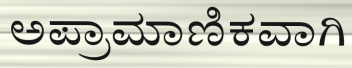
ಅಪ್ರಾಮಾಣಿಕವಾಗಿ